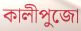
কালীপুজো